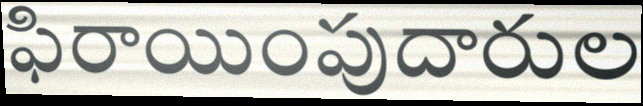
ఫిరాయింపుదారుల